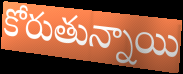
కోరుతున్నాయి